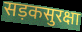
सड़कसुरक्षा